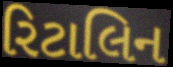
રિટાલિન